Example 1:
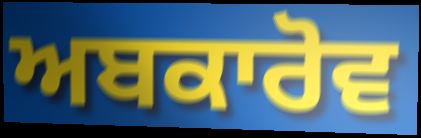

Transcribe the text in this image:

ਅਬਕਾਰੋਵ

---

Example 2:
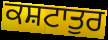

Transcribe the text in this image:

ਕਸ਼ਟਾਤੁਰ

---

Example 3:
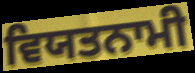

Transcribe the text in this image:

ਵਿਯਤਨਾਮੀ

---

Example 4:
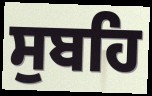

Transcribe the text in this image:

ਸੁਬਹਿ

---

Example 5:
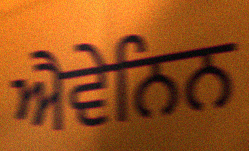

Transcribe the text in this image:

ਐਵੇਨਿਨ